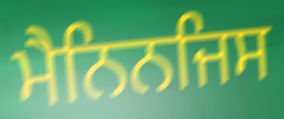
ਮੈਨਿਨਜਿਸ